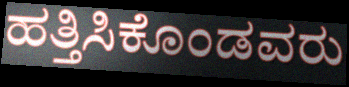
ಹತ್ತಿಸಿಕೊಂಡವರು